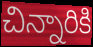
చిన్నారికి